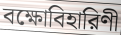
বক্ষোবিহারিণী